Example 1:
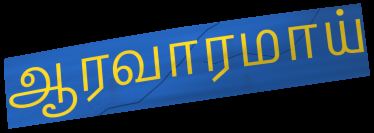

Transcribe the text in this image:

ஆரவாரமாய்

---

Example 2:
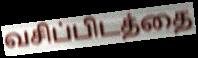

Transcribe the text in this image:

வசிப்பிடத்தை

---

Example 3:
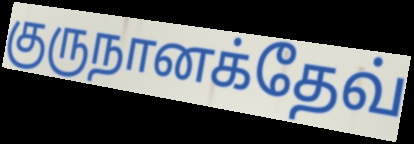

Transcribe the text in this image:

குருநானக்தேவ்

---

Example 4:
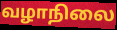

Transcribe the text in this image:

வழாநிலை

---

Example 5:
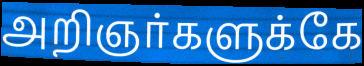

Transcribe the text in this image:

அறிஞர்களுக்கே